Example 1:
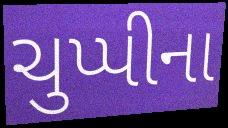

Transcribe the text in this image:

ચુપ્પીના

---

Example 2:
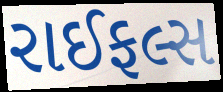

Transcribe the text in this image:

રાઈફલ્સ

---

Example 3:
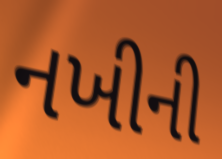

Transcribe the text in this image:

નખીની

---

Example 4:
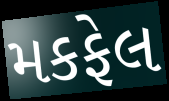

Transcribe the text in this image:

મકફેલ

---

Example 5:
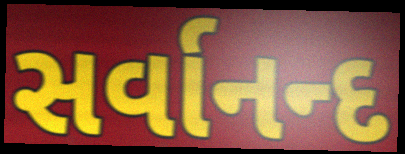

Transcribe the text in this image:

સર્વાનન્દ